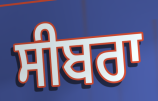
ਸੀਬਰਾ